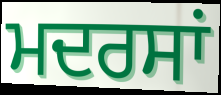
ਮਦਰਸਾਂ